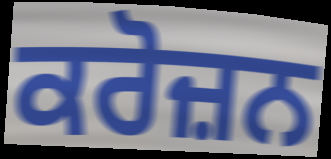
ਕਰੋਜ਼ਨ